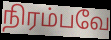
நிரம்பவே